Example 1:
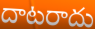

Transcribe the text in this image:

దాటరాదు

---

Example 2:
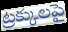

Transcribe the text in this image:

ట్రక్కులపై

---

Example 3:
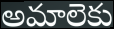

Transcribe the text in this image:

అమాలెకు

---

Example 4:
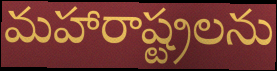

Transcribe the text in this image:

మహారాష్ట్రలను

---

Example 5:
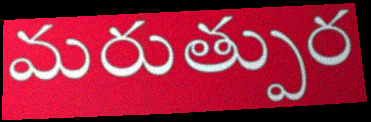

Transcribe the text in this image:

మరుత్పుర